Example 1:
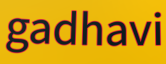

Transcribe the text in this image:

gadhavi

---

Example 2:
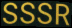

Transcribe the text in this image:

SSSR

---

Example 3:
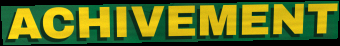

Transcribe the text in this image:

ACHIVEMENT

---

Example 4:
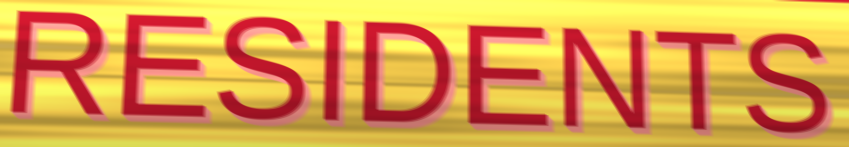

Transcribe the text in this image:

RESIDENTS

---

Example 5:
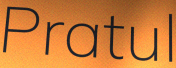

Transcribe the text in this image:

Pratul